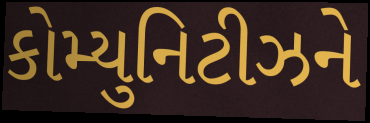
કોમ્યુનિટીઝને